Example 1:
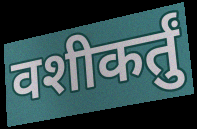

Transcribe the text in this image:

वशीकर्तुं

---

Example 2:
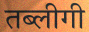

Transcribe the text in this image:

तब्‍लीगी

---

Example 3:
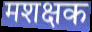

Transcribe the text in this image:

मशक्षक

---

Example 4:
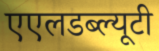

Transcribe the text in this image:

एएलडब्ल्यूटी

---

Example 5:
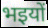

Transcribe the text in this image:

भइयों